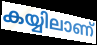
കയ്യിലാണ്